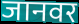
जानवर